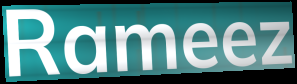
Rameez